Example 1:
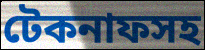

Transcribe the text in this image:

টেকনাফসহ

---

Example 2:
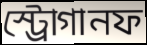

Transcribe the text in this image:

স্ট্রোগানফ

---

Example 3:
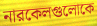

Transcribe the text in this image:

নারকেলগুলোকে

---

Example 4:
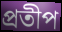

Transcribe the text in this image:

প্রতীপ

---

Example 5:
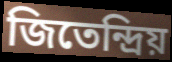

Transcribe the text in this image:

জিতেন্দ্রিয়